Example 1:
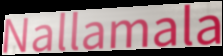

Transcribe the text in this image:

Nallamala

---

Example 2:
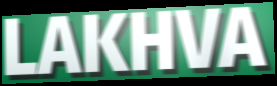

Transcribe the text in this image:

LAKHVA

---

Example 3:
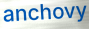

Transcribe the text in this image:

anchovy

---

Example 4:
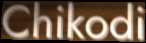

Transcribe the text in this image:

Chikodi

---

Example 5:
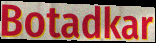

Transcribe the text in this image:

Botadkar